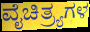
ವೈಚಿತ್ರ್ಯಗಳ